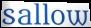
sallow